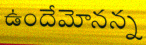
ఉందేమోనన్న